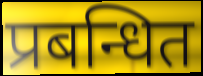
प्रबन्धित